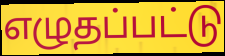
எழுதப்பட்டு